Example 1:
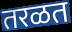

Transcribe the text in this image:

तरळत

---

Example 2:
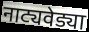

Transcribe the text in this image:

नाट्यवेड्या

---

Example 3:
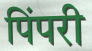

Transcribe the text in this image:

पिंपरी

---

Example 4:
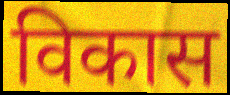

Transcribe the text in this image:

विकास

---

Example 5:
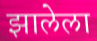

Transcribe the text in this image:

झालेला